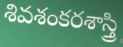
శివశంకరశాస్త్రి